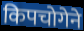
किपचोगेने